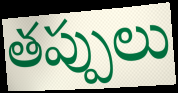
తప్పులు